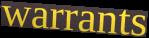
warrants